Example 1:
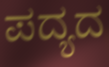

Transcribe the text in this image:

ಪದ್ಯದ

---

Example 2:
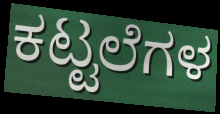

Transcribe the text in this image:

ಕಟ್ಟಲೆಗಳ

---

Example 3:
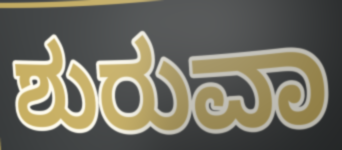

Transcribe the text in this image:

ಶುರುವಾ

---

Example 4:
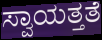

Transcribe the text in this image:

ಸ್ವಾಯತ್ತತೆ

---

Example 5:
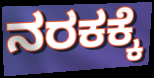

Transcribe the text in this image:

ನರಕಕ್ಕೆ